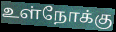
உள்நோக்கு